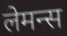
लेमन्स